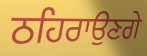
ਠਹਿਰਾਉਣਗੇ